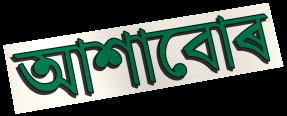
আশাবোৰ